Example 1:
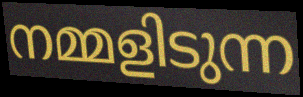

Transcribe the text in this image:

നമ്മളിടുന്ന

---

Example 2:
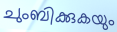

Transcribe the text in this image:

ചുംബിക്കുകയും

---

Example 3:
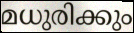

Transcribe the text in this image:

മധുരിക്കും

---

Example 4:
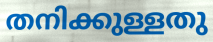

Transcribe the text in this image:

തനിക്കുള്ളതു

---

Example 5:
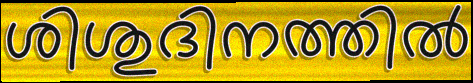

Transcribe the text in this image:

ശിശുദിനത്തിൽ